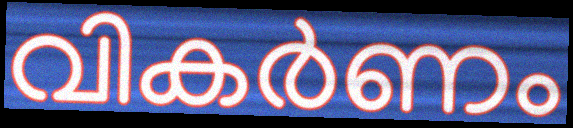
വികർണം